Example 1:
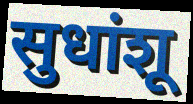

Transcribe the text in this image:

सुधांशू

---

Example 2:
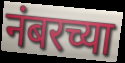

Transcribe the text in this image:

नंबरच्या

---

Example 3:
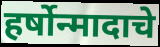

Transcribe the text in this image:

हर्षोन्मादाचे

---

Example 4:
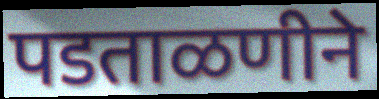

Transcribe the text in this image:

पडताळणीने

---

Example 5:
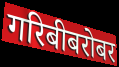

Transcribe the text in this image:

गरिबीबरोबर